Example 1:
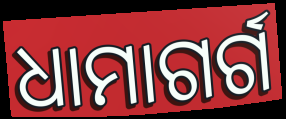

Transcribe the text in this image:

ଧାମାଗର୍ଗ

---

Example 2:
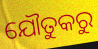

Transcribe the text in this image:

ଯୌତୁକରୁ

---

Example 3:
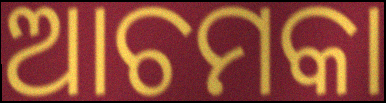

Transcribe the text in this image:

ଆଚମକା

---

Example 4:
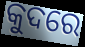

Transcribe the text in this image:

କୁଦରେ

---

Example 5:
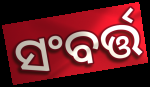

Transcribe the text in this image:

ସଂବର୍ତ୍ତ